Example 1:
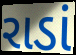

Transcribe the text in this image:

રાડાં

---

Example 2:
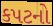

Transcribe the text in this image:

કપટનો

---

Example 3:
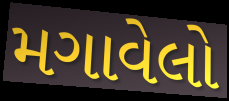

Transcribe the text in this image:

મગાવેલો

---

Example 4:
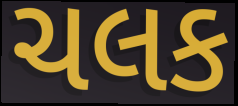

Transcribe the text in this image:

ચલક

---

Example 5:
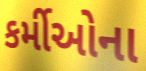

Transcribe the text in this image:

કર્મીઓના